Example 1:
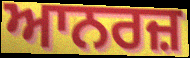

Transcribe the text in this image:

ਆਨਰਜ਼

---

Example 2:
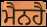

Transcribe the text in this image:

ਮੈਨਹੈ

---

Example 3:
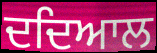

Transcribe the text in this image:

ਦਦਿਆਲ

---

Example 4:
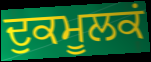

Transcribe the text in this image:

ਦੁਕਮੂਲਕਂ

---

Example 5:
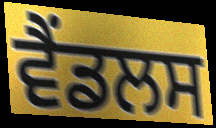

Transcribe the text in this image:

ਵੈਂਡਲਸ